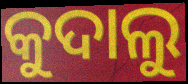
କୁଦାଲୁ